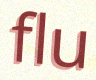
flu